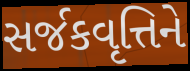
સર્જકવૃત્તિને